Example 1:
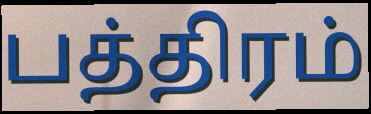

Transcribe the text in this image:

பத்திரம்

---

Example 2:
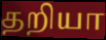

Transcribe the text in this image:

தறியா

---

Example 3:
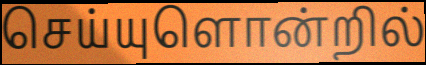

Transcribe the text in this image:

செய்யுளொன்றில்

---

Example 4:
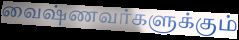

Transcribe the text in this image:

வைஷ்ணவர்களுக்கும்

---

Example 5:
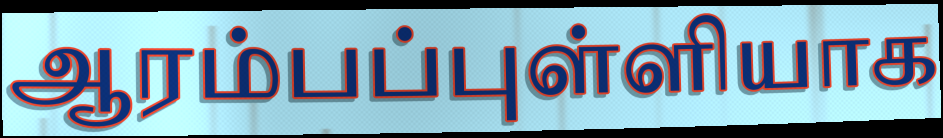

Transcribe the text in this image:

ஆரம்பப்புள்ளியாக